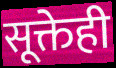
सूक्तेही